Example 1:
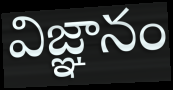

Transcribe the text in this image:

విజ్ఞానం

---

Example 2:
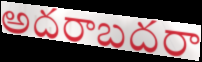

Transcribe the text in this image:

అదరాబదరా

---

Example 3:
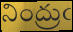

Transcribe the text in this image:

నింద్రుఁ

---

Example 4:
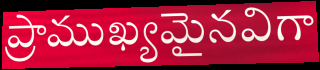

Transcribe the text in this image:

ప్రాముఖ్యమైనవిగా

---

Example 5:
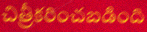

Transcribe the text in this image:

చిత్రీకరించబడింది